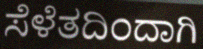
ಸೆಳೆತದಿಂದಾಗಿ